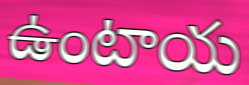
ఉంటాయ